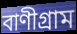
বাণীগ্রাম